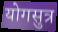
योगसुत्र